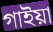
গাইয়া